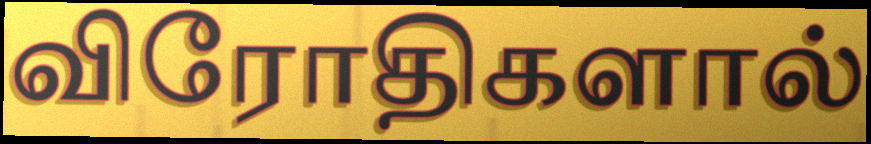
விரோதிகளால்